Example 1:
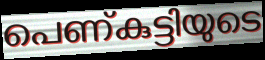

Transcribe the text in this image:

പെണ്കുട്ടിയുടെ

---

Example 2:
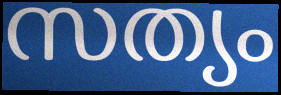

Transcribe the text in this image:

സത്യം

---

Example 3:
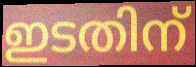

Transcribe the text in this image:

ഇടതിന്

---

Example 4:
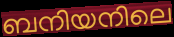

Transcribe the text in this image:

ബനിയനിലെ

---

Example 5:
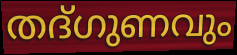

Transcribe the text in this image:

തദ്ഗുണവും